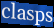
clasps